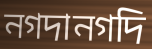
নগদানগদি